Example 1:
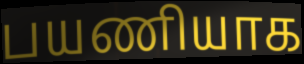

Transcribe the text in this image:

பயணியாக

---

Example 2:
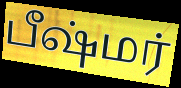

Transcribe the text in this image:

பீஷ்மர்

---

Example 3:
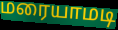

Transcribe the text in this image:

மரையாமடி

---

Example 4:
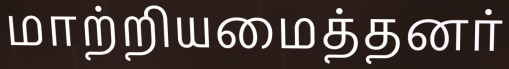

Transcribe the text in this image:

மாற்றியமைத்தனர்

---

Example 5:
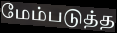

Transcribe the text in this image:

மேம்படுத்த